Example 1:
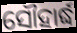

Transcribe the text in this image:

ସୌହାର୍ଦ୍ଧ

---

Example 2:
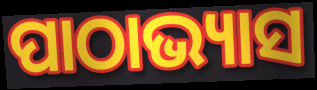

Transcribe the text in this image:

ପାଠାଭ୍ୟାସ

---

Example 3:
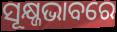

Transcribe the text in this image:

ସୂକ୍ଷ୍ଜଭାବରେ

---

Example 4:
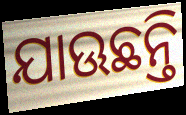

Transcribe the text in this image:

ଯାଊଛନ୍ତି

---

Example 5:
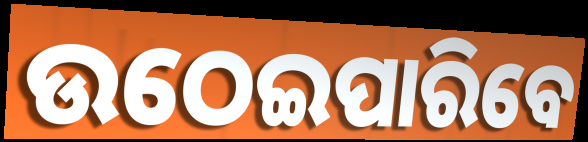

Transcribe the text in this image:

ଉଠେଇପାରିବେ